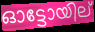
ഓട്ടോയില്